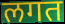
लगत